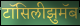
टॉसिलीझुमॅब